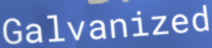
Galvanized